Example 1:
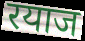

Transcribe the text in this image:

रयाज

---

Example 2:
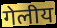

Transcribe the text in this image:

गेलीय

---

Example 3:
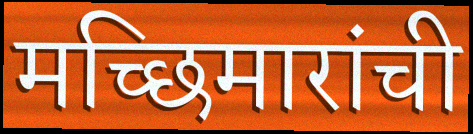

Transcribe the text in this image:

मच्छिमारांची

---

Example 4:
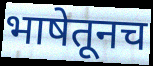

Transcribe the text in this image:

भाषेतूनच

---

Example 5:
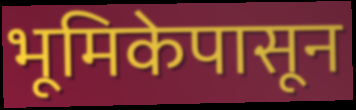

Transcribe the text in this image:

भूमिकेपासून